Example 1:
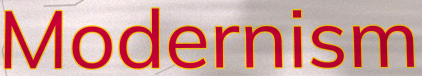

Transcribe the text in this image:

Modernism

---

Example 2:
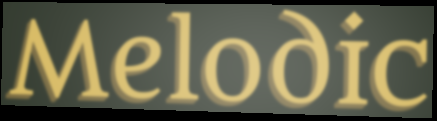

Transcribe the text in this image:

Melodic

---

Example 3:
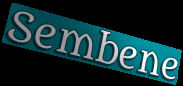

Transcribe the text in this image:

Sembene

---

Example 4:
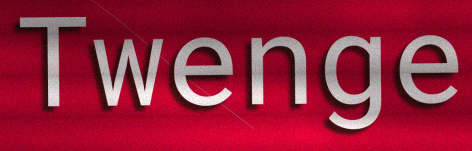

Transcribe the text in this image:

Twenge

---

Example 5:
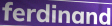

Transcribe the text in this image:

ferdinand